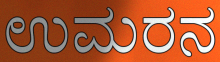
ಉಮರನ